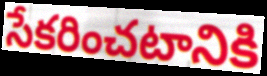
సేకరించటానికి